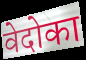
वेदोका